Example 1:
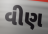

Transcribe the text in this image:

વીણ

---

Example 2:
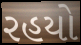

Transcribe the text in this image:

રહયો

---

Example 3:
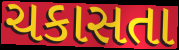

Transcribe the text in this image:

ચકાસતા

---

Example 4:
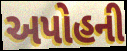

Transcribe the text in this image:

અપોહની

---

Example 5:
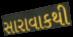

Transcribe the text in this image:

સારાવાકથી